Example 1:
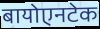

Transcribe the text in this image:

बायोएनटेक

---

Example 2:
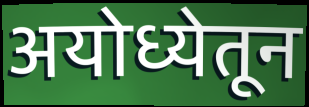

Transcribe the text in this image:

अयोध्येतून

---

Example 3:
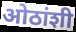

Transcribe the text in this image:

ओठांशी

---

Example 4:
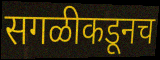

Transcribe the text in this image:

सगळीकडूनच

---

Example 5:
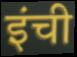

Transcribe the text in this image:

इंची